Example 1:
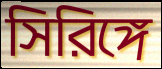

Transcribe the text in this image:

সিরিঙ্গে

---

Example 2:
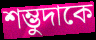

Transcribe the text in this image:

শম্ভুদাকে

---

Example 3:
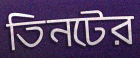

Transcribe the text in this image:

তিনটের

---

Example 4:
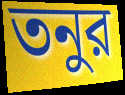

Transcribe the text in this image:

তনুর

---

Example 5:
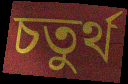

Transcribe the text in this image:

চতুর্থ